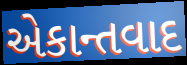
એકાન્તવાદ